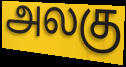
அலகு